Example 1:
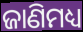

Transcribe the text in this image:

ଜାଣିମଧ୍ୟ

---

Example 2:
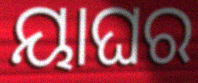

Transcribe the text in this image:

ୟାଘର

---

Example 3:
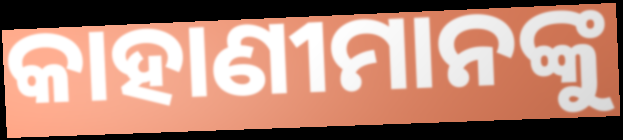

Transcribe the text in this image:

କାହାଣୀମାନଙ୍କୁ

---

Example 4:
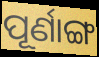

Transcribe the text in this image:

ପୂର୍ଣାଙ୍ଗ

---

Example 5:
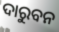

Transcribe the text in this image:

ଦାରୁବନ